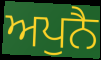
ਅਪੁਨੈ